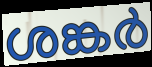
ശങ്കർ